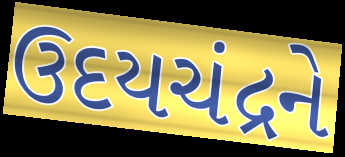
ઉદયચંદ્રને